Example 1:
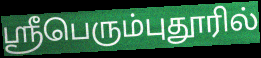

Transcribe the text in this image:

ஸ்ரீபெரும்புதூரில்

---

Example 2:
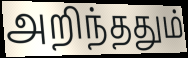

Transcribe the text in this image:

அறிந்ததும்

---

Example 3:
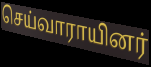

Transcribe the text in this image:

செய்வாராயினர்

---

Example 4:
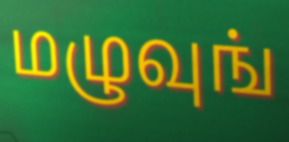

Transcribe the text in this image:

மழுவுங்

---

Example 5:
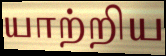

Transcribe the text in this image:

யாற்றிய